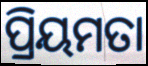
ପ୍ରିୟମତା